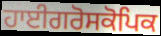
ਹਾਈਗਰੋਸਕੋਪਿਕ